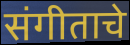
संगीताचे